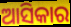
ଆସିକାର